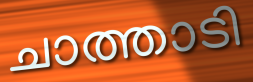
ചാത്താടി